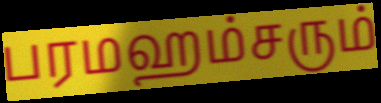
பரமஹம்சரும்